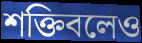
শক্তিবলেও